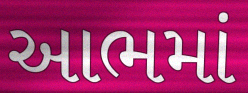
આભમાં